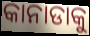
କାନାଡାକୁ